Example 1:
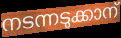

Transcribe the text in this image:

നടന്നടുക്കാന്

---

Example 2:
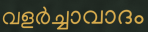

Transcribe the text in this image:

വളർച്ചാവാദം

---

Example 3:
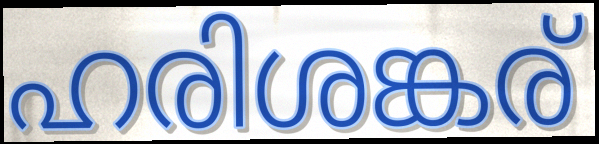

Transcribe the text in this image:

ഹരിശങ്കര്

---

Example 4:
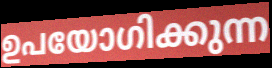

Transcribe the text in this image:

ഉപയോഗിക്കുന്ന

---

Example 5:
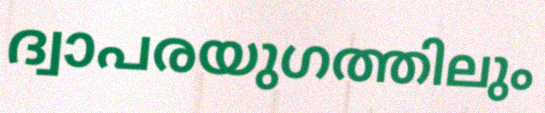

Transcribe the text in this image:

ദ്വാപരയുഗത്തിലും